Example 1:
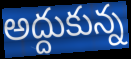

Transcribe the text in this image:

అద్దుకున్న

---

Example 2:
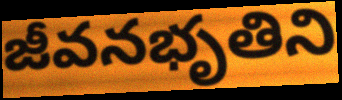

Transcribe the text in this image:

జీవనభృతిని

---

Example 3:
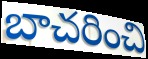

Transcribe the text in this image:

బాచరించి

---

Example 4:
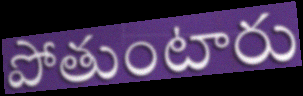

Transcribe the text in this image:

పోతుంటారు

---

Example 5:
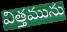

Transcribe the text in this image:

విత్తమును